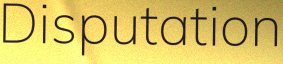
Disputation